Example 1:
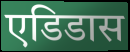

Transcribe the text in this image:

एडिडास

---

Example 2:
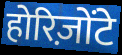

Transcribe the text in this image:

होरिज़ोंटे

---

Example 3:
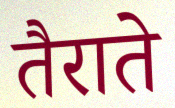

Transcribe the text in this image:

तैराते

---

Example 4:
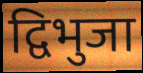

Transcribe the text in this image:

द्विभुजा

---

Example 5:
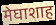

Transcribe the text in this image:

मेघाशाह